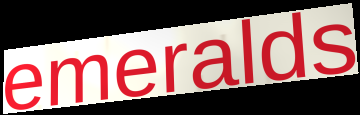
emeralds